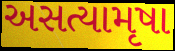
અસત્યામૃષા